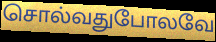
சொல்வதுபோலவே